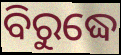
ବିରୁଦ୍ଧେ